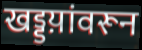
खड्डय़ांवरून